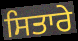
ਸਿਤਾਰੇ